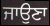
ਜਾਉਣਾ